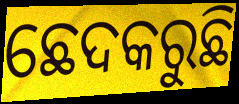
ଛେଦକରୁଛି